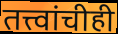
तत्त्वांचीही